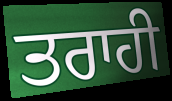
ਤਰਾਹੀ